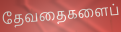
தேவதைகளைப்